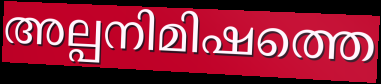
അല്പനിമിഷത്തെ